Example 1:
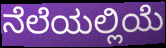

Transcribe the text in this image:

ನೆಲೆಯಲ್ಲಿಯೆ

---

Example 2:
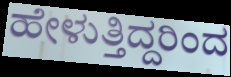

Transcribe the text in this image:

ಹೇಳುತ್ತಿದ್ದರಿಂದ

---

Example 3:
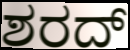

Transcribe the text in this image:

ಶರದ್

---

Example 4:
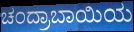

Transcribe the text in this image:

ಚಂದ್ರಾಬಾಯಿಯ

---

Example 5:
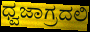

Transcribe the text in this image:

ಧ್ವಜಾಗ್ರದಲಿ